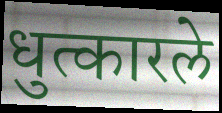
धुत्कारले